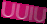
UUIU